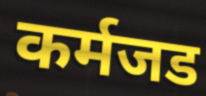
कर्मजड